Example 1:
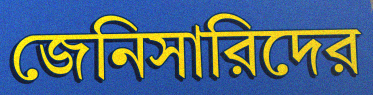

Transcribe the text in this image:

জেনিসারিদের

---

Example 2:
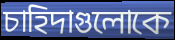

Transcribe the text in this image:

চাহিদাগুলোকে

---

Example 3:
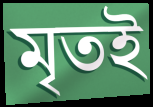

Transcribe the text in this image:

মৃতই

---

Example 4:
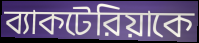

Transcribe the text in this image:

ব্যাকটেরিয়াকে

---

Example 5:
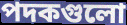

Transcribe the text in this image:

পদকগুলো